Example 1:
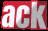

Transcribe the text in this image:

ack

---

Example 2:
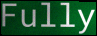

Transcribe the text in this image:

Fully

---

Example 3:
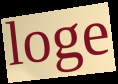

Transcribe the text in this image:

loge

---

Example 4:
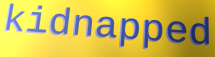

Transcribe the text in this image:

kidnapped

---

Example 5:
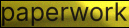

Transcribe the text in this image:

paperwork